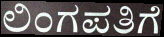
ಲಿಂಗಪತಿಗೆ